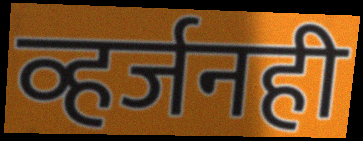
व्हर्जनही